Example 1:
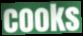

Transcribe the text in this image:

cooks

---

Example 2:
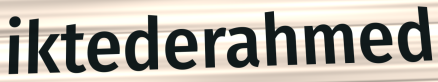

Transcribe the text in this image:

iktederahmed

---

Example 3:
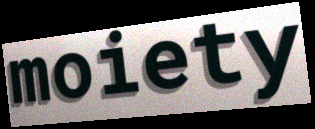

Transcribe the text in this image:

moiety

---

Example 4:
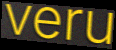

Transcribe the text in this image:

veru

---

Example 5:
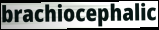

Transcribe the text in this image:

brachiocephalic